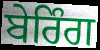
ਬੇਰਿੰਗ